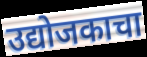
उद्योजकाचा